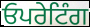
ਓਪਰੇਟਿੰਗ